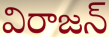
విరాజన్